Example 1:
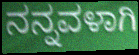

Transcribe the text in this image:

ನನ್ನವಳಾಗಿ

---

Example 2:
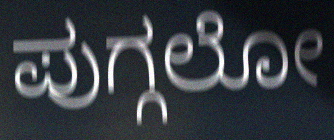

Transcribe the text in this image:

ಪುಗ್ಗಲೋ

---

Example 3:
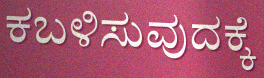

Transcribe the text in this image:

ಕಬಳಿಸುವುದಕ್ಕೆ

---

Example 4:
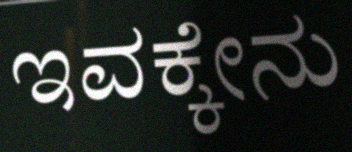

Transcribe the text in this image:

ಇವಕ್ಕೇನು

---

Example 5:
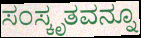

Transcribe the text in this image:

ಸಂಸ್ಕೃತವನ್ನೂ